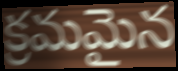
క్రమమైన